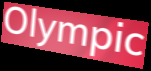
Olympic